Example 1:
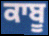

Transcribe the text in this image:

ਕਾਬੂ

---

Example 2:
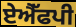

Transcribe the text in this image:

ਏਐੱਫਪੀ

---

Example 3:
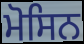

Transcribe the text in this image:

ਮੋਸਿਨ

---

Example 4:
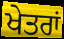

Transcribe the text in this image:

ਖੇਤਰਾਂ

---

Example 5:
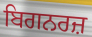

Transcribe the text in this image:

ਬਿਗਨਰਜ਼